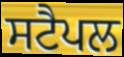
ਸਟੈਪਲ